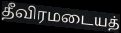
தீவிரமடையத்